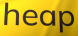
heap